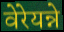
वेरेयन्ने